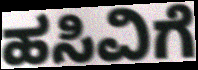
ಹಸಿವಿಗೆ